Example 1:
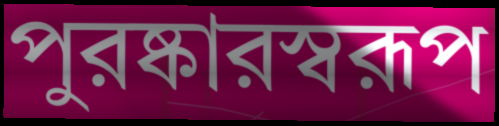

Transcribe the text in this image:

পুরষ্কারস্বরূপ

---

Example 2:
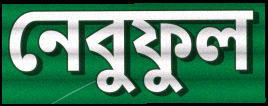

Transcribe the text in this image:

নেবুফুল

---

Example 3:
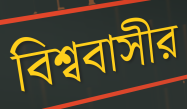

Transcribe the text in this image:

বিশ্ববাসীর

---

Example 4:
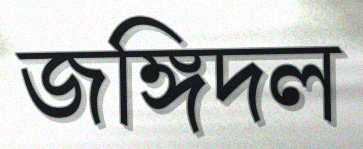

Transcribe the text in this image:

জঙ্গিদল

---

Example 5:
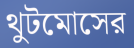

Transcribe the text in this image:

থুটমোসের